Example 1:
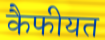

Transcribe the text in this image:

कैफीयत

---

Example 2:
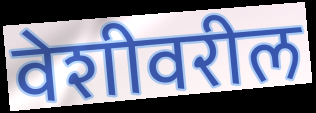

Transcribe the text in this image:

वेशीवरील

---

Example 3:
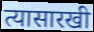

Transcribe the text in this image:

त्यासारखी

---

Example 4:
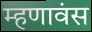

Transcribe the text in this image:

म्हणावंस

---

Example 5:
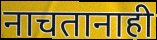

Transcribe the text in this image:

नाचतानाही